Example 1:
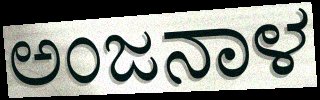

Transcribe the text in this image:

ಅಂಜನಾಳ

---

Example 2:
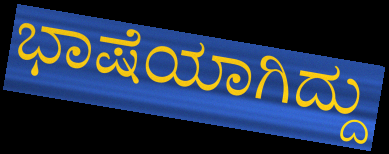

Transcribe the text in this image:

ಭಾಷೆಯಾಗಿದ್ದು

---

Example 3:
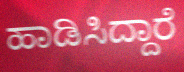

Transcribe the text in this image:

ಹಾಡಿಸಿದ್ದಾರೆ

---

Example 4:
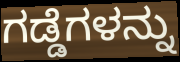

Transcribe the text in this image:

ಗಡ್ಡೆಗಳನ್ನು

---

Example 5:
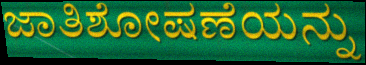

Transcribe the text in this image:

ಜಾತಿಶೋಷಣೆಯನ್ನು